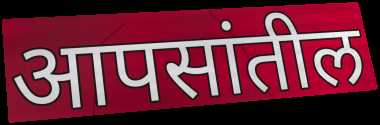
आपसांतील